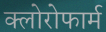
क्लोरोफार्म